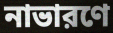
নাভারণে